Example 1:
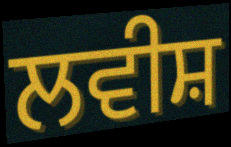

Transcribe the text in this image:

ਲਵੀਸ਼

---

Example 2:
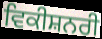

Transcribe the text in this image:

ਵਿਕੀਸ਼ਨਰੀ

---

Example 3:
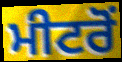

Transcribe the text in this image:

ਮੀਟਰੋਂ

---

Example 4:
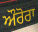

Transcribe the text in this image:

ਔਰੋਰਾ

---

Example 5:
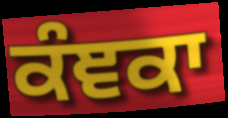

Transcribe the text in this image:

ਕੰਞਕਾ